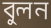
বুলন